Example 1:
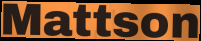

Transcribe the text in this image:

Mattson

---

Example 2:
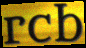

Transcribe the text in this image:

rcb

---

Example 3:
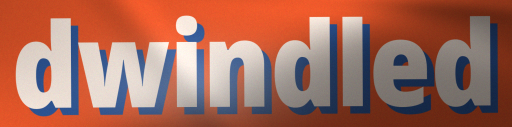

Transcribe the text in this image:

dwindled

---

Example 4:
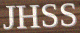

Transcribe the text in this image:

JHSS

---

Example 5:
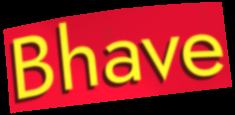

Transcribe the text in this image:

Bhave